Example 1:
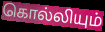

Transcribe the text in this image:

கொல்லியும்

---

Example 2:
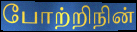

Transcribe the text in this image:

போற்றிநின்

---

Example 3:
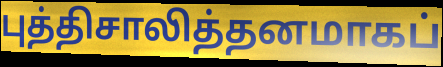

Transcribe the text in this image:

புத்திசாலித்தனமாகப்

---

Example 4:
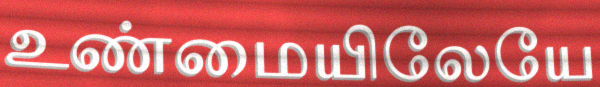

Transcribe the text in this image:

உண்மையிலேயே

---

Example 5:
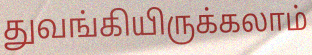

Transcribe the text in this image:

துவங்கியிருக்கலாம்